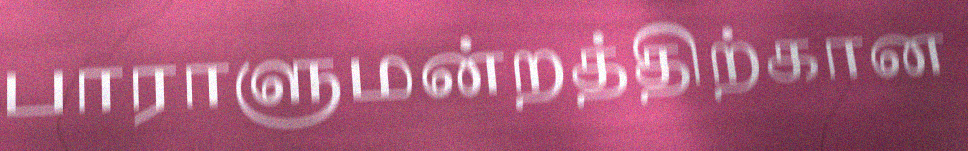
பாராளுமன்றத்திற்கான